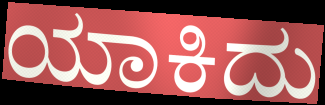
ಯಾಕಿದು